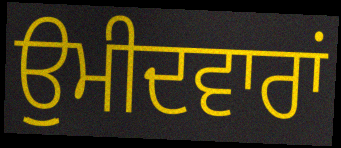
ਉੁਮੀਦਵਾਰਾਂ